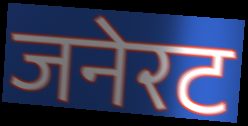
जनेरट